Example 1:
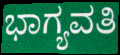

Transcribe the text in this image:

ಭಾಗ್ಯವತಿ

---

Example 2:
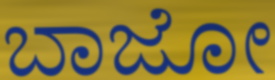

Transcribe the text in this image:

ಬಾಜೋ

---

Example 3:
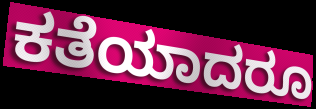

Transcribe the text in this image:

ಕತೆಯಾದರೂ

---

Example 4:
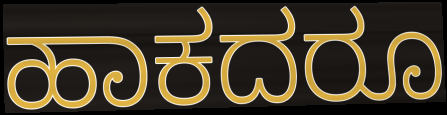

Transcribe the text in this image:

ಹಾಕದರೂ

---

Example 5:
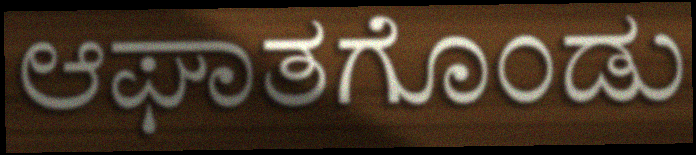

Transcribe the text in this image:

ಆಘಾತಗೊಂಡು